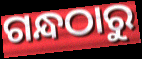
ଗନ୍ଧଠାରୁ